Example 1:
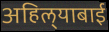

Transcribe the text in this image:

अहिल्याबाई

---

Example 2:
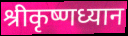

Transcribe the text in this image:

श्रीकृष्णध्यान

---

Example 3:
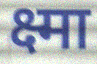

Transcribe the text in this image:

क्ष्मा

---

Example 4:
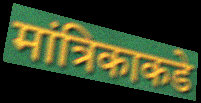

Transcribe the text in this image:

मांत्रिकाकडे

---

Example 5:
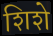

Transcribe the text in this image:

शिशे